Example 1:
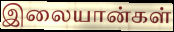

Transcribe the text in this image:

இலையான்கள்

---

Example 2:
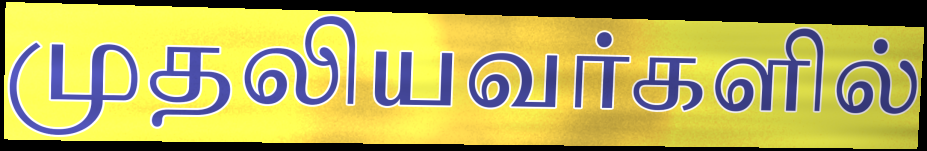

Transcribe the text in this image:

முதலியவர்களில்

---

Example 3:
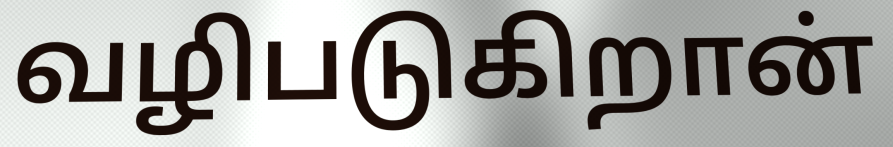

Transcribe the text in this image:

வழிபடுகிறான்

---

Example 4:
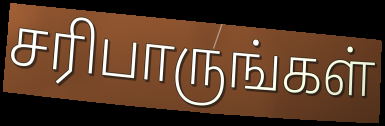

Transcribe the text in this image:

சரிபாருங்கள்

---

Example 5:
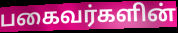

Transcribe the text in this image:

பகைவர்களின்